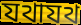
যথাযথ